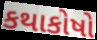
કથાકોષો